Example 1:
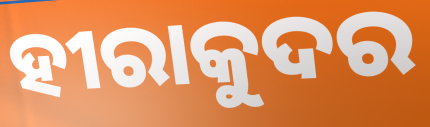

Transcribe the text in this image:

ହୀରାକୁଦର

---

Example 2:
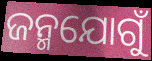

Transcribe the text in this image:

ଜନ୍ମଯୋଗୁଁ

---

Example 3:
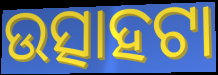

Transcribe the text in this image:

ଉତ୍ସାହଟା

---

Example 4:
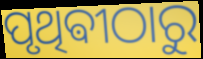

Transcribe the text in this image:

ପୃଥିଵୀଠାରୁ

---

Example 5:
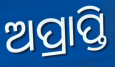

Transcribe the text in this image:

ଅପ୍ରାପ୍ତି